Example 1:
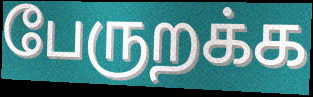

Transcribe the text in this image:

பேருறக்க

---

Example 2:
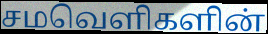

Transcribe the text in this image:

சமவெளிகளின்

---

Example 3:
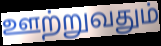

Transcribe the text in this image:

ஊற்றுவதும்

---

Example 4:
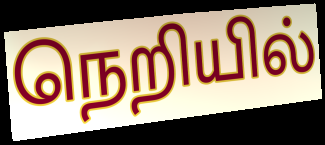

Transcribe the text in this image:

நெறியில்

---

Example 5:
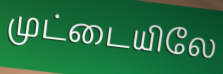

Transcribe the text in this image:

முட்டையிலே